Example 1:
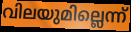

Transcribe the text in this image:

വിലയുമില്ലെന്ന്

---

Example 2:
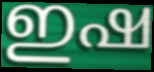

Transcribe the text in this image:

ഇഷ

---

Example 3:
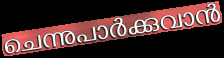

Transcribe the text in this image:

ചെന്നുപാർക്കുവാൻ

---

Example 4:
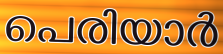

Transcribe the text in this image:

പെരിയാർ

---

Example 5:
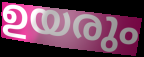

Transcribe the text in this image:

ഉയരും